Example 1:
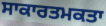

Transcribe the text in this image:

ਸਾਕਾਰਤਮਕਤਾ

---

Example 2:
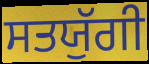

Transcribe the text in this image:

ਸਤਯੁੱਗੀ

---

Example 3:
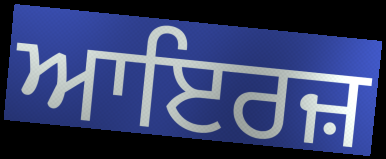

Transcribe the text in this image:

ਆਇਰਜ਼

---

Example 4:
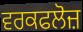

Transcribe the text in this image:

ਵਰਕਫਲੋਜ਼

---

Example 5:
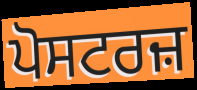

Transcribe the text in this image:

ਪੋਸਟਰਜ਼